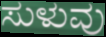
ಸುಳುವು